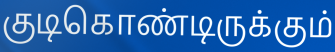
குடிகொண்டிருக்கும்